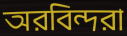
অরবিন্দরা